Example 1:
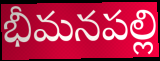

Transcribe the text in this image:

భీమనపల్లి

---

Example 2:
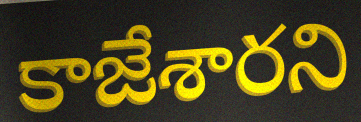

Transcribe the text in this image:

కాజేశారని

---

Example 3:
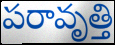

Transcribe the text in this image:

పరావృత్తి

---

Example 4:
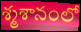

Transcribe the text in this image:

శ్మశానంలో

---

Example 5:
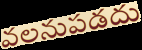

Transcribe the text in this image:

వలనుపడదు